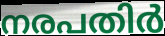
നരപതിർ